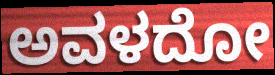
ಅವಳದೋ